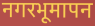
नगरभूमापन